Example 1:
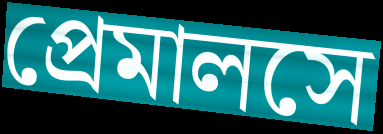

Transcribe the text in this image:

প্রেমালসে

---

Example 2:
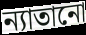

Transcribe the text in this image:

ন্যাতানো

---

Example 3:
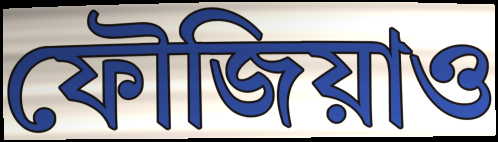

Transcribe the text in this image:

ফৌজিয়াও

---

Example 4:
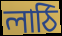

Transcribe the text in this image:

লাঠি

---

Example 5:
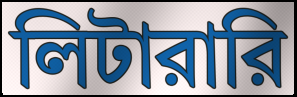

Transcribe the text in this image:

লিটারারি